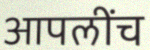
आपलींच